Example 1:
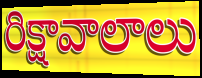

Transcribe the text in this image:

రిక్షావాలాలు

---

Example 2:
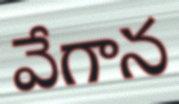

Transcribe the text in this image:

వేగాన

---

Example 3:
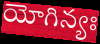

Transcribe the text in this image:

యోగిన్యః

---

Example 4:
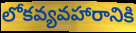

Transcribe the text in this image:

లోకవ్యవహారానికి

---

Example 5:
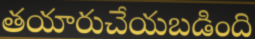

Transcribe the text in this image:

తయారుచేయబడింది